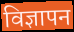
विज्ञापन